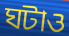
ঘটাও